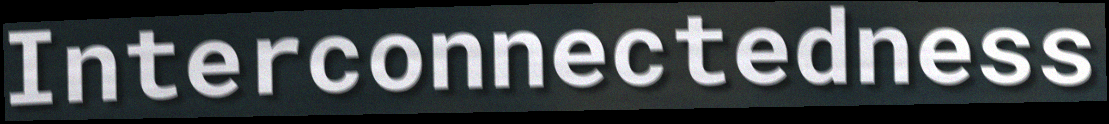
Interconnectedness